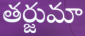
తర్జుమా